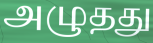
அழுதது